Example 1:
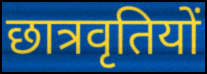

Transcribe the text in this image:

छात्रवृतियों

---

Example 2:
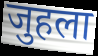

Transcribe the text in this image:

जुहला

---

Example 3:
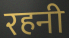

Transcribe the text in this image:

रहनी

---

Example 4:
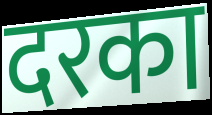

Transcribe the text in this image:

दरका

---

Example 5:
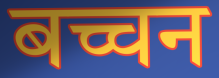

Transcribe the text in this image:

बच्चन